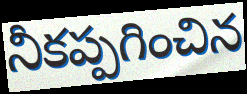
నీకప్పగించిన